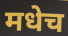
मधेच